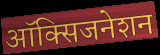
ऑक्सिजनेशन